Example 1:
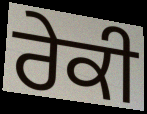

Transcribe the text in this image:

ਰੇਕੀ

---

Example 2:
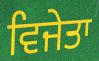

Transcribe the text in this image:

ਵਿਜੇਤਾ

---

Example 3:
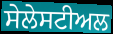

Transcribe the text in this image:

ਸੇਲੇਸਟੀਅਲ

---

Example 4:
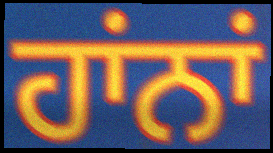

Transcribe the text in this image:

ਹਾਂਨਾਂ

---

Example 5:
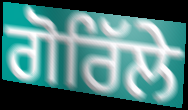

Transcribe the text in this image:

ਗੋਰਿੱਲੇ